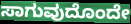
ಸಾಗುವುದೊಂದೇ